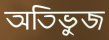
অতিভুজ